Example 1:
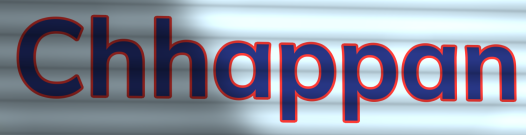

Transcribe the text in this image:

Chhappan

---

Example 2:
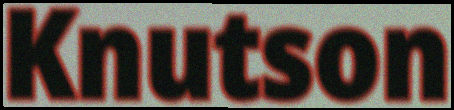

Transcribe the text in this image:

Knutson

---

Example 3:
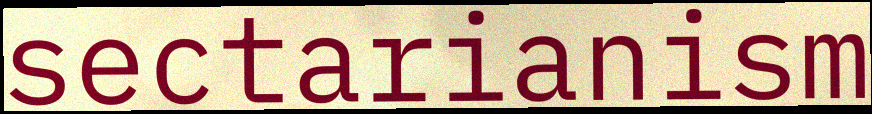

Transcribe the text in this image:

sectarianism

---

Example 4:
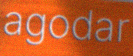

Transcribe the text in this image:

agodar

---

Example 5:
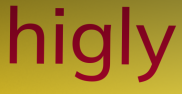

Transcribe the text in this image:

higly